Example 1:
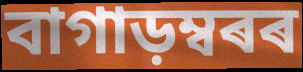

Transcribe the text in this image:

বাগাড়ম্বৰৰ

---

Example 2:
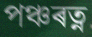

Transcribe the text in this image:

পঞ্চৰত্ন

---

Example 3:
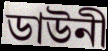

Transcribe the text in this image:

ডাউনী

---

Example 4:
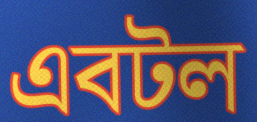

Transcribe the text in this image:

এবটল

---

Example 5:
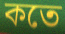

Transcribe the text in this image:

কতে